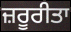
ਜ਼ਰੂਰੀਤਾ